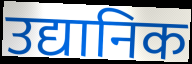
उद्यानिक